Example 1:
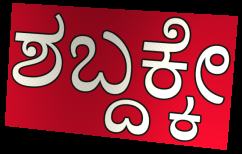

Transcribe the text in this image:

ಶಬ್ದಕ್ಕೇ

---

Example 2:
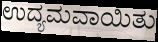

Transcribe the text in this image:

ಉದ್ಯಮವಾಯಿತು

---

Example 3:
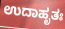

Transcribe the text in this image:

ಉದಾಹೃತಃ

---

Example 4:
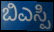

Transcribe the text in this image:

ಬಿಎಸ್ಪಿ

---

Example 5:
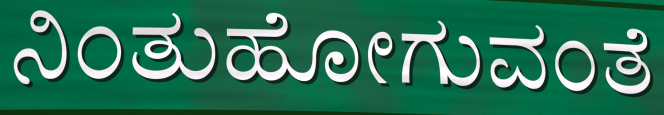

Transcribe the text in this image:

ನಿಂತುಹೋಗುವಂತೆ